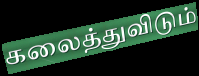
கலைத்துவிடும்